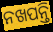
ନଖପନ୍ତି